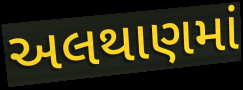
અલથાણમાં